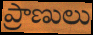
ప్రాణులు